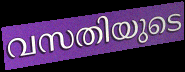
വസതിയുടെ